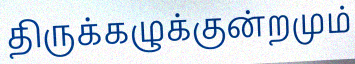
திருக்கழுக்குன்றமும்